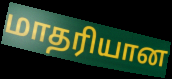
மாதரியான